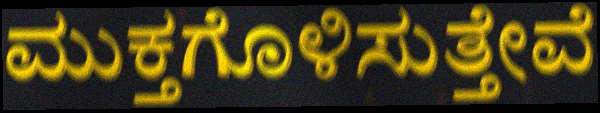
ಮುಕ್ತಗೊಳಿಸುತ್ತೇವೆ